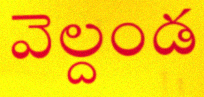
వెల్దండ